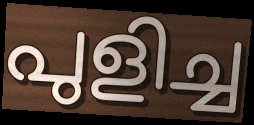
പുളിച്ച